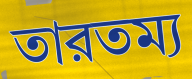
তারতম্য